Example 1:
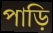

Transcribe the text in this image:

পাড়ি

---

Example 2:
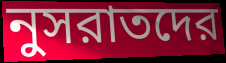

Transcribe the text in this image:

নুসরাতদের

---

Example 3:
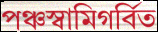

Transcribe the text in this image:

পঞ্চস্বামিগর্বিত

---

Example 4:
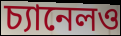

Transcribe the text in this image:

চ্যানেলও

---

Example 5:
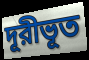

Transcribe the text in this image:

দূরীভূত